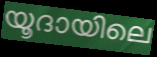
യൂദായിലെ